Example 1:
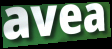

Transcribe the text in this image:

avea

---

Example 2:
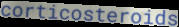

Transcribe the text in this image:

corticosteroids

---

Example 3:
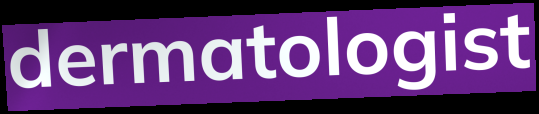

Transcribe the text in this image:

dermatologist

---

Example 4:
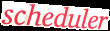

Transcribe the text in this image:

scheduler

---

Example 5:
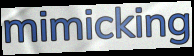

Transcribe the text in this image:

mimicking